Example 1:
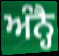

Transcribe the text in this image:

ਅੰਨ੍ਹੈ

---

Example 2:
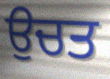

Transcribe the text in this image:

ਉਚਤ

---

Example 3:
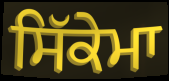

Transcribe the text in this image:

ਸਿੱਕੇਮਾ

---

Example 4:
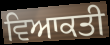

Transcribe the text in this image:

ਵਿਆਕਤੀ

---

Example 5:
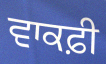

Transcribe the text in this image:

ਵਾਕਫ਼ੀ